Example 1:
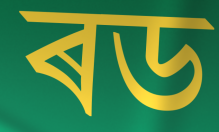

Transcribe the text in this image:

ৰড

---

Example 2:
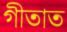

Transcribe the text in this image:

গীতাত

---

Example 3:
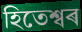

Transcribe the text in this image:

হিতেশ্বৰ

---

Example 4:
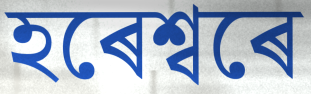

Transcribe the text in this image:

হৰেশ্বৰে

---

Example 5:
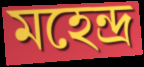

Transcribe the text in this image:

মহেন্দ্ৰ